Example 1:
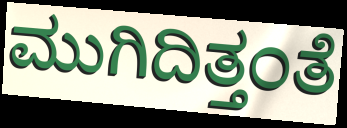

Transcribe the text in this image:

ಮುಗಿದಿತ್ತಂತೆ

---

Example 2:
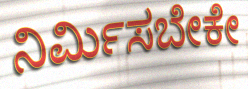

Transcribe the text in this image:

ನಿರ್ಮಿಸಬೇಕೇ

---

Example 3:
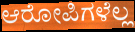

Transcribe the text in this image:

ಆರೋಪಿಗಳೆಲ್ಲ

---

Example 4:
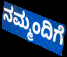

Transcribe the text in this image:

ನಮ್ಮಂದಿಗೆ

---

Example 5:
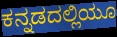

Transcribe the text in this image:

ಕನ್ನಡದಲ್ಲಿಯೂ